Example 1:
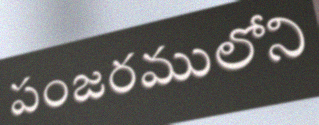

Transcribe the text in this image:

పంజరములోని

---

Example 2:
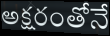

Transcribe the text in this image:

అక్షరంతోనే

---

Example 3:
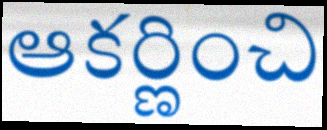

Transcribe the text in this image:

ఆకర్ణించి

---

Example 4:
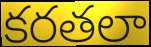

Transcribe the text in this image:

కరతలా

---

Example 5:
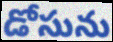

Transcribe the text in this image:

డోసును